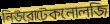
নিউরোটেকনোলজি